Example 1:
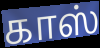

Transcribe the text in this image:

காஸ்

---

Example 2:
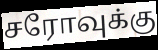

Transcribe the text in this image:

சரோவுக்கு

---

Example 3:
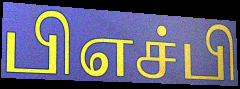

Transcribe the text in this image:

பிஎச்பி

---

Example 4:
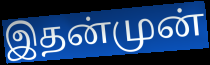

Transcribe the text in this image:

இதன்முன்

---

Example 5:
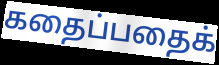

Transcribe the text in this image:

கதைப்பதைக்